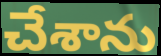
చేశాను